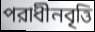
পরাধীনবৃত্তি